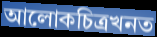
আলোকচিত্ৰখনত